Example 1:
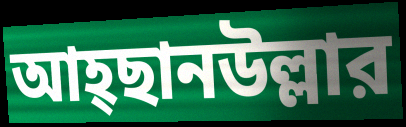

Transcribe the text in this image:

আহ্ছানউল্লার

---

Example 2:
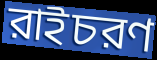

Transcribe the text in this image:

রাইচরণ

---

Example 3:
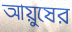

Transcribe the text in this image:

আয়ুষের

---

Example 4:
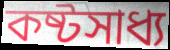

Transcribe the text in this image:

কষ্টসাধ্য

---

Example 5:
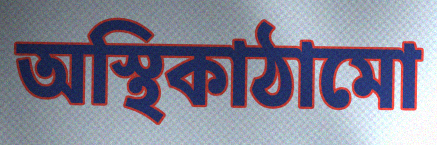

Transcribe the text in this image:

অস্থিকাঠামো